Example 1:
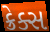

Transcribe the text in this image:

ક્રેક્સ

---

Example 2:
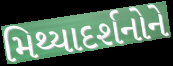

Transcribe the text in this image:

મિથ્યાદર્શનોને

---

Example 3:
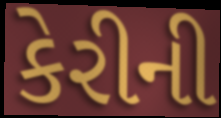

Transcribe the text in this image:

કેરીની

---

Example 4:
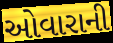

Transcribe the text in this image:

ઓવારાની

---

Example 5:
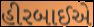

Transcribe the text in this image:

હીરબાઈએ